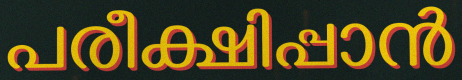
പരീക്ഷിപ്പാൻ